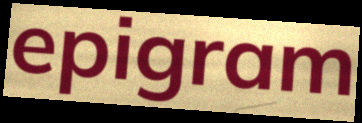
epigram